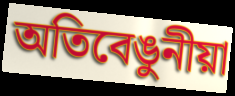
অতিবেঙুনীয়া